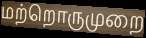
மற்றொருமுறை